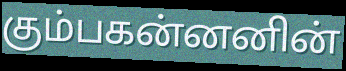
கும்பகன்னனின்